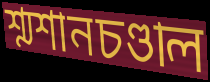
শ্মশানচণ্ডাল